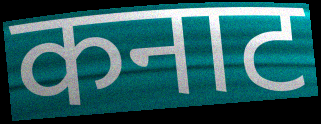
कनाट